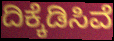
ದಿಕ್ಕೆಡಿಸಿವೆ